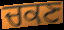
ਚਕਣ